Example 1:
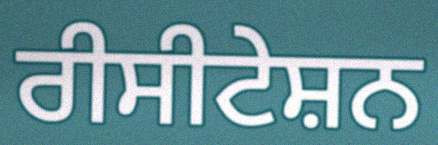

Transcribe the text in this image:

ਰੀਸੀਟੇਸ਼ਨ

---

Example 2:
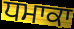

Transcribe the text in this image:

ਧਮਾਕਾ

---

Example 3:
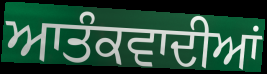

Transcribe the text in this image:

ਆਤੰਕਵਾਦੀਆਂ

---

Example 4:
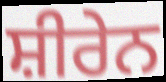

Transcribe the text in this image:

ਸ਼ੀਰੇਨ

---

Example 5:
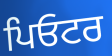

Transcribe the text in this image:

ਪਿਓਟਰ